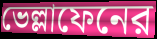
ভেল্লাফেনের